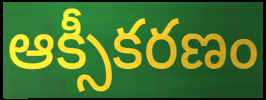
ఆక్సీకరణం